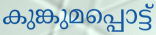
കുങ്കുമപ്പൊട്ട്